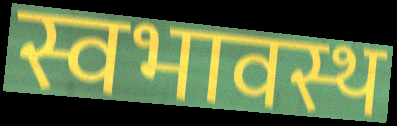
स्वभावस्थ